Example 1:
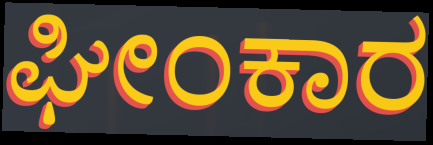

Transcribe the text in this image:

ಘೀಂಕಾರ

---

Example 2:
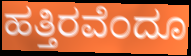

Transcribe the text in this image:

ಹತ್ತಿರವೆಂದೂ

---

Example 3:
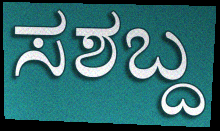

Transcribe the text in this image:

ಸಶಬ್ದ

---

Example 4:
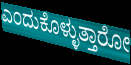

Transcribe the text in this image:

ಎಂದುಕೊಳ್ಳುತ್ತಾರೋ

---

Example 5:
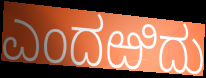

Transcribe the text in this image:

ಎಂದಱಿದು